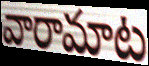
వారామాట